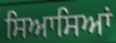
ਸਿਆਸਿਆਂ